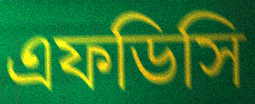
এফডিসি